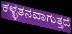
ಕಳ್ಳತನವಾಗುತ್ತದೆ